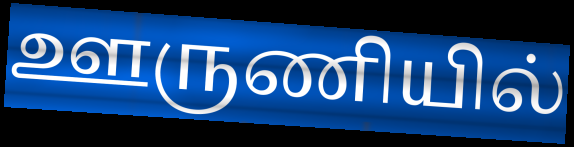
ஊருணியில்